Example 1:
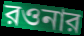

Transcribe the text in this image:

রওনার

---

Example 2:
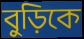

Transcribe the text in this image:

বুড়িকে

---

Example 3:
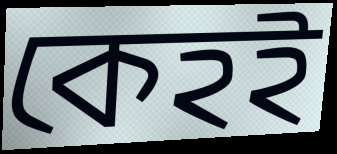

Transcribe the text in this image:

কেহই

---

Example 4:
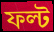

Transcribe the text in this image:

ফল্ট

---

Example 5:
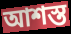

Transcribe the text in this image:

আশস্ত